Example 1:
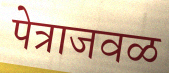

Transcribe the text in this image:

पेत्राजवळ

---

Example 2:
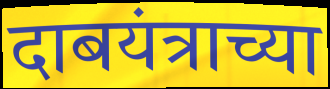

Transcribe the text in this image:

दाबयंत्राच्या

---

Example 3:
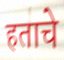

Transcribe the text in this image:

हताचे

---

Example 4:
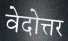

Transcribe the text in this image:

वेदोत्तर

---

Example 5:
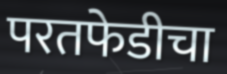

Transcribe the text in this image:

परतफेडीचा